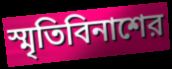
স্মৃতিবিনাশের